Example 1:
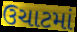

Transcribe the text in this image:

ઉચાટમાં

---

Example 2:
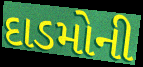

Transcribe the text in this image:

દાડમોની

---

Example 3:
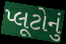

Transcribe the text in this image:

પ્લૂટોનું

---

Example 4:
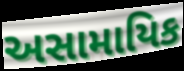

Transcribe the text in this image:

અસામાયિક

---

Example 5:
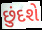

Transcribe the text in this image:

છુંદશે